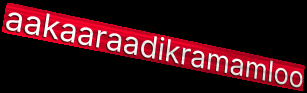
aakaaraadikramamloo